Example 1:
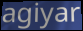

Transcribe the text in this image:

agiyar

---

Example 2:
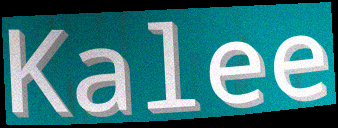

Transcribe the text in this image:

Kalee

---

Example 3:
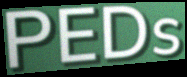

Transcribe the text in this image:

PEDs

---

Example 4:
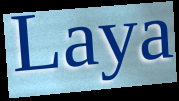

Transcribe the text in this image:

Laya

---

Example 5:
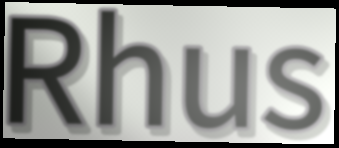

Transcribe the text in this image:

Rhus